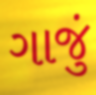
ગાજું